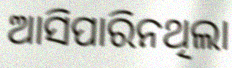
ଆସିପାରିନଥିଲା